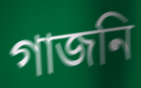
গাজনি